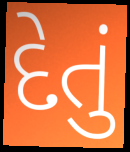
દેતું